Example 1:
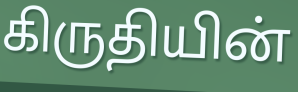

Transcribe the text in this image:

கிருதியின்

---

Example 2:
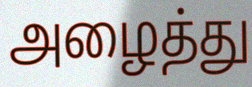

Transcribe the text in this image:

அழைத்து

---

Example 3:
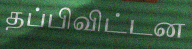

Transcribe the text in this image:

தப்பிவிட்டன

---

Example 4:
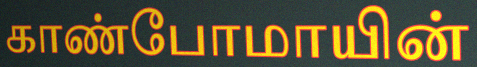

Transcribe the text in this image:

காண்போமாயின்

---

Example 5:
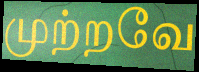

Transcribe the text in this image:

முற்றவே